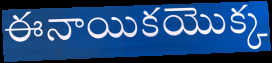
ఈనాయికయొక్క